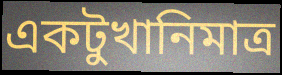
একটুখানিমাত্র